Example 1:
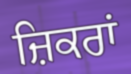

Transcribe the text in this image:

ਜ਼ਿਕਰਾਂ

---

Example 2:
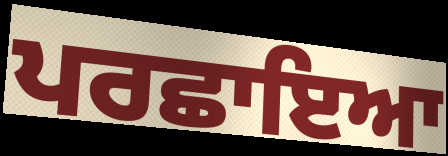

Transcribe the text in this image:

ਪਰਛਾਇਆ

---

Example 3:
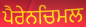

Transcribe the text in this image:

ਪੈਰੇਨਚਿਮਲ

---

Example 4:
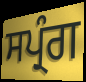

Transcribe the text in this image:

ਸਪ੍ਰੰਗ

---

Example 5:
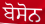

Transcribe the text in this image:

ਬੋਸੋਨ